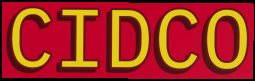
CIDCO